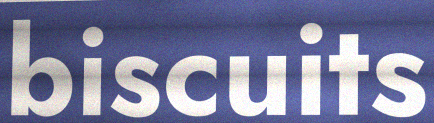
biscuits